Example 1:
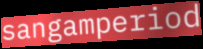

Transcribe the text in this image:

sangamperiod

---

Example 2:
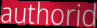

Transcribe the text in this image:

authorid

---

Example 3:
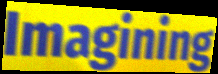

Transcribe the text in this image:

Imagining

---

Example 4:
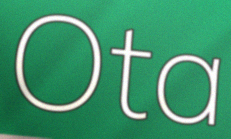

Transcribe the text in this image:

Ota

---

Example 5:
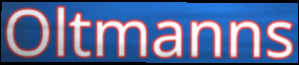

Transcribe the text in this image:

Oltmanns